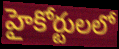
హైకోర్టులలో